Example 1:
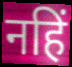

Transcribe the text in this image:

नहिं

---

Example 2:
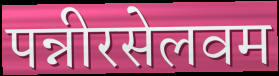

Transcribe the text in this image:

पन्नीरसेलवम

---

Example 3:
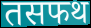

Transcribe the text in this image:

तसफथ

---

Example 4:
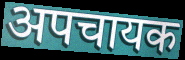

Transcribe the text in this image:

अपचायक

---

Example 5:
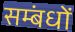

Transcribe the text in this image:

सम्बंधों